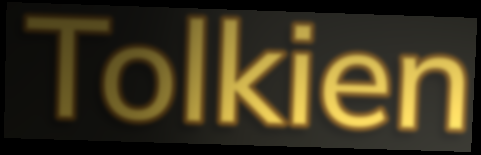
Tolkien